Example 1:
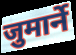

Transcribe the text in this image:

जुमार्ने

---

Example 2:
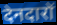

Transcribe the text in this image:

देनदारों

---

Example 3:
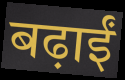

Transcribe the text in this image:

बढ़ाईं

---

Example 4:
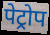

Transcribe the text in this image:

पेट्रोप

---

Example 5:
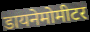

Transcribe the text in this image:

डायनेमोमीटर